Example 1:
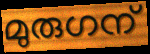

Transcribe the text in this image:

മുരുഗന്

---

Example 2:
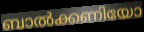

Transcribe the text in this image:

ബാൽക്കണിയോ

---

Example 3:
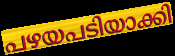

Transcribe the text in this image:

പഴയപടിയാക്കി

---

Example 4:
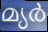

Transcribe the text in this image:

മ്യർ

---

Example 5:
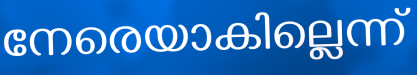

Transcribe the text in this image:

നേരെയാകില്ലെന്ന്